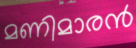
മണിമാരൻ